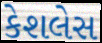
કેશલેસ